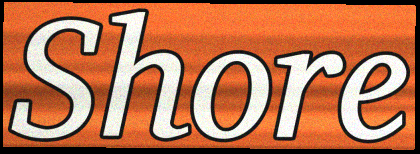
Shore